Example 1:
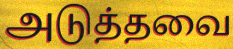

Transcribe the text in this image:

அடுத்தவை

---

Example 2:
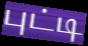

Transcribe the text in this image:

புட்டி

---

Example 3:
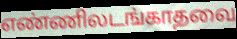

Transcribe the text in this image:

எண்ணிலடங்காதவை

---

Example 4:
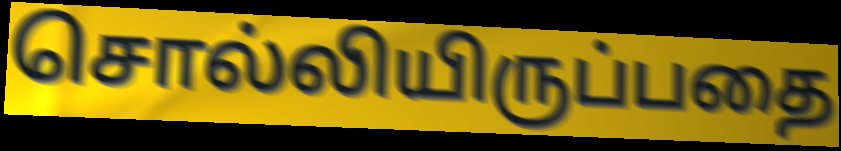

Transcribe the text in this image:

சொல்லியிருப்பதை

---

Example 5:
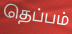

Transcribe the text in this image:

தெப்பம்